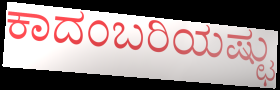
ಕಾದಂಬರಿಯಷ್ಟು